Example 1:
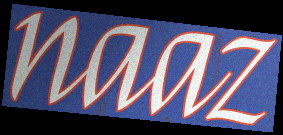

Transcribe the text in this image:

naaz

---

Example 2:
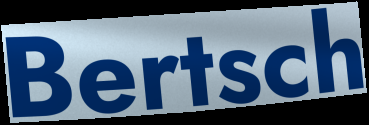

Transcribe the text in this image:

Bertsch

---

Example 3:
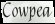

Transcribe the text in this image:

Cowpea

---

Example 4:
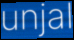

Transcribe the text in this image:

unjal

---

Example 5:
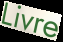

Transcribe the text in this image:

Livre